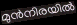
മുൻനിരയിൽ